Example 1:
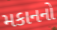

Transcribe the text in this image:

મકાનનો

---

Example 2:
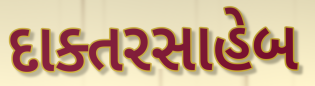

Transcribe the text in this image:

દાક્તરસાહેબ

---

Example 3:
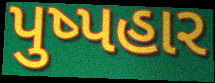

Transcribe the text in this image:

પુષ્પહાર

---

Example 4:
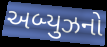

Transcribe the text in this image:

અબ્યુઝનો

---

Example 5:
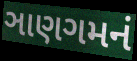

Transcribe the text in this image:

ઞાણગમનં